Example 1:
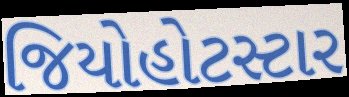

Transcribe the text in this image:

જિયોહોટસ્ટાર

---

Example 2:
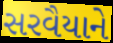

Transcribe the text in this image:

સરવૈયાને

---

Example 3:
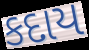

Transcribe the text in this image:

કદાય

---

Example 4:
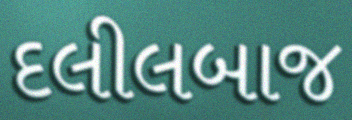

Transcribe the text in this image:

દલીલબાજ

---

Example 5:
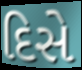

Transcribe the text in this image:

દિસે